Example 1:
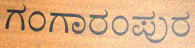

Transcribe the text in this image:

ಗಂಗಾರಂಪುರ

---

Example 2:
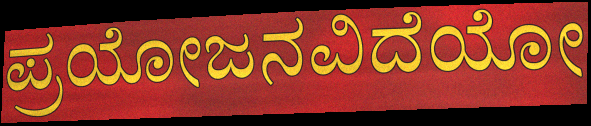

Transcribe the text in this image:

ಪ್ರಯೋಜನವಿದೆಯೋ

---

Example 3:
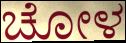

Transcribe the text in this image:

ಚೋಳ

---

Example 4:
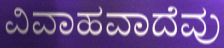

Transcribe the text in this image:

ವಿವಾಹವಾದೆವು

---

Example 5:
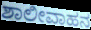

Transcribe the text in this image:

ಶಾಲೀವಾಹನ